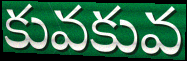
కువకువ